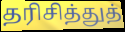
தரிசித்துத்